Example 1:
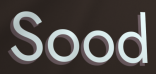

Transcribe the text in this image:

Sood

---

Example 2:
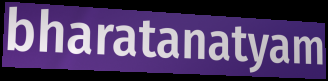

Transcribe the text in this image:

bharatanatyam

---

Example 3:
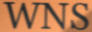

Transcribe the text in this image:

WNS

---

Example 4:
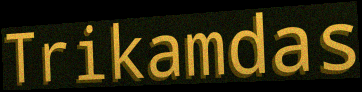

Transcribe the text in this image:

Trikamdas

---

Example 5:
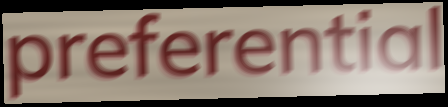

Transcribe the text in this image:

preferential